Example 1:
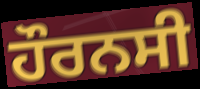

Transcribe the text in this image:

ਹੌਰਨਸੀ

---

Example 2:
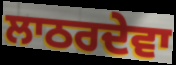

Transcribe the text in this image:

ਲਾਠਰਦੇਵਾ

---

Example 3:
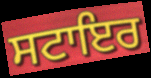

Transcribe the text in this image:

ਸਟਾਇਰ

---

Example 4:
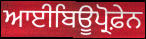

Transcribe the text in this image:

ਆਈਬਿਊਪ੍ਰੋਫ਼ੇਨ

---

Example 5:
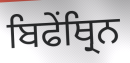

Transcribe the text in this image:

ਬਿਫੇਂਥ੍ਰਿਨ